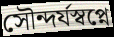
সৌন্দর্যস্বপ্নে